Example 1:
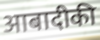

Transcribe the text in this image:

आबादीकी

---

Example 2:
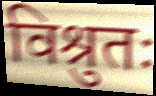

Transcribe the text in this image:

विश्रुतः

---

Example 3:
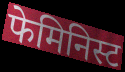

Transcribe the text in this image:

फेमिनिस्ट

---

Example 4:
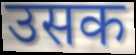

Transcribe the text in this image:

उसक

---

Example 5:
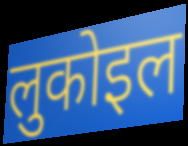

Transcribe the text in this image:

लुकोइल